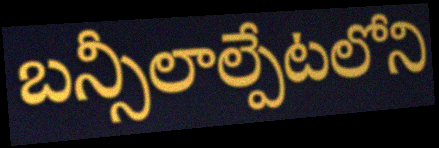
బన్సీలాల్పేటలోని